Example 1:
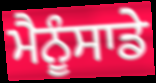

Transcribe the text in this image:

ਮੈਨੂੰਸਾਡੇ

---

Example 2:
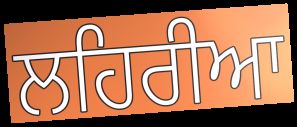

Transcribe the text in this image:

ਲਹਿਰੀਆ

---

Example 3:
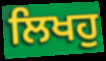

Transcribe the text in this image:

ਲਿਖਹੁ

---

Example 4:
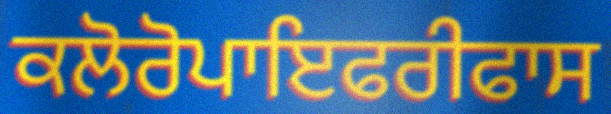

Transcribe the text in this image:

ਕਲੋਰੋਪਾਇਫਰੀਫਾਸ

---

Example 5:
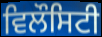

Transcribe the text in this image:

ਵਿਲੌਸਿਟੀ